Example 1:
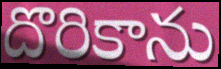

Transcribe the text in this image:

దొరికాను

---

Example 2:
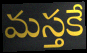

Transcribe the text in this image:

మస్తకే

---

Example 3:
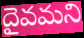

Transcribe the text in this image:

దైవమని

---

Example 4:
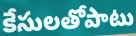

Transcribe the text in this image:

కేసులతోపాటు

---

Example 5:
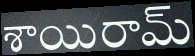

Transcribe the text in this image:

శాయిరామ్